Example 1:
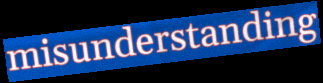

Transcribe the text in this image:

misunderstanding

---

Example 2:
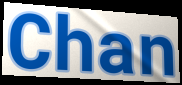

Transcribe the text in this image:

Chan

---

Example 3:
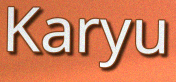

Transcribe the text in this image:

Karyu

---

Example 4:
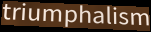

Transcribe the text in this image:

triumphalism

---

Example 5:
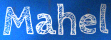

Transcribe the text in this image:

Mahel